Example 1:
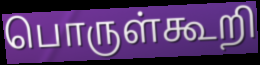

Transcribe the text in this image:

பொருள்கூறி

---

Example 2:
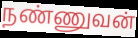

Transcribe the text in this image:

நண்ணுவன்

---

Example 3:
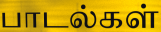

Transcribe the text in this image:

பாடல்கள்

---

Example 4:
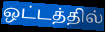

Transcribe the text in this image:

ஒட்டத்தில்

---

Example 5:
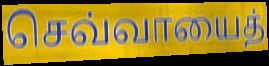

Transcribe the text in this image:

செவ்வாயைத்